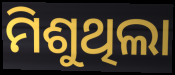
ମିଶୁଥିଲା